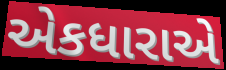
એકધારાએ